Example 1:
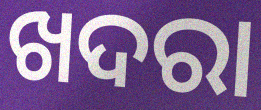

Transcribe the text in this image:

ଖଦରା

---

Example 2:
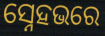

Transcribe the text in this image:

ସ୍ନେହଭରେ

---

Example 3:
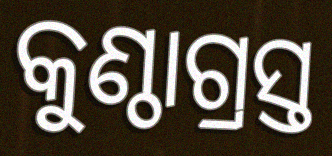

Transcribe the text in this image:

କୁଣ୍ଠାଗ୍ରସ୍ତ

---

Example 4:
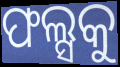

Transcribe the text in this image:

ଫଲ୍ସକୁ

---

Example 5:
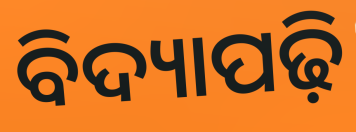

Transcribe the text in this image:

ବିଦ୍ୟାପଢ଼ି